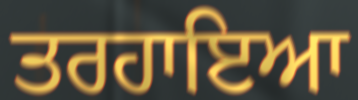
ਤਰਹਾਇਆ